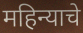
महिन्याचे